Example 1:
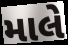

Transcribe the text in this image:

માલે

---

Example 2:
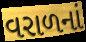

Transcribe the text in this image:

વરાળનાં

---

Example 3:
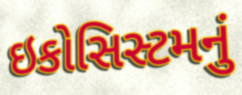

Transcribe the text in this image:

ઇકોસિસ્ટમનું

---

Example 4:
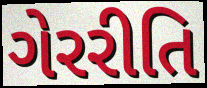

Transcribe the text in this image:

ગેરરીતિ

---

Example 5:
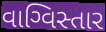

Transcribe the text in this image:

વાગ્વિસ્તાર